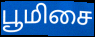
பூமிசை